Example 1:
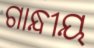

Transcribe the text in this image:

ଗାନ୍ଧୀୟ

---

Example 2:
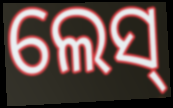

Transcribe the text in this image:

ଲେସ୍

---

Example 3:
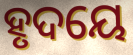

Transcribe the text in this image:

ହୃଦୟେ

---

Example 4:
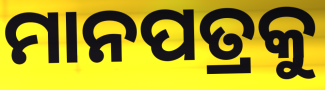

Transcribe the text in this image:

ମାନପତ୍ରକୁ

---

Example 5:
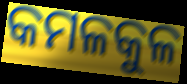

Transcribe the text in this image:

କମଳକୁଳ